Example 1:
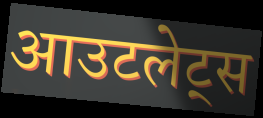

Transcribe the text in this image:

आउटलेट्स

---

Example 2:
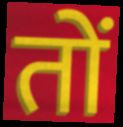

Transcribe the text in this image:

तों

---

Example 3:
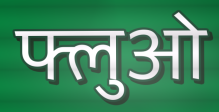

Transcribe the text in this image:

फ्लुओ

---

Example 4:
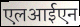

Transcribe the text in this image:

एलआईएन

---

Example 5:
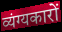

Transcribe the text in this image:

व्‍यंग्‍यकारों